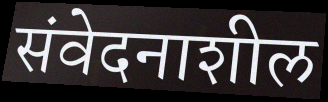
संवेदनाशील